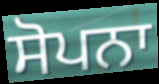
ਸੋਪਨਾ